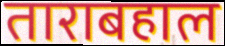
ताराबहाल